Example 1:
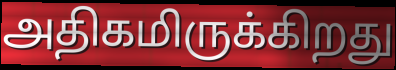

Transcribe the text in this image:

அதிகமிருக்கிறது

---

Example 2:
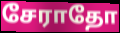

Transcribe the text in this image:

சேராதோ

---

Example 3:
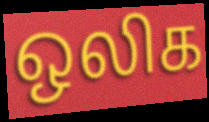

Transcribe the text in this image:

ஒலிக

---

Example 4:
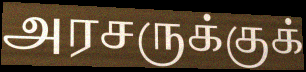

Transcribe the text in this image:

அரசருக்குக்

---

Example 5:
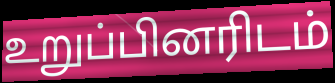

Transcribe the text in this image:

உறுப்பினரிடம்